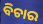
ବିଚାର